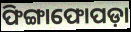
ଫିଙ୍ଗାଫୋପଡ଼ା